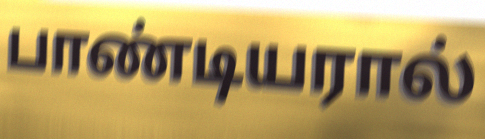
பாண்டியரால்